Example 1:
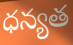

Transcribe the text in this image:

ధన్యత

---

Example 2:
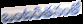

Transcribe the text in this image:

ఒంటరితనంతో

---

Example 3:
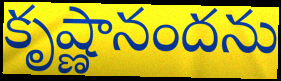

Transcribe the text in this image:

కృష్ణానందను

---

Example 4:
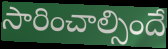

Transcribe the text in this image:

సారించాల్సిందే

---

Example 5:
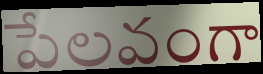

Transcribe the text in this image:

పేలవంగా